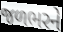
જળભરને